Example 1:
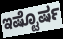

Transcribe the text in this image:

ಇಷ್ಟೊರ್ಷ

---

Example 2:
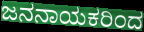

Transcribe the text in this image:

ಜನನಾಯಕರಿಂದ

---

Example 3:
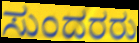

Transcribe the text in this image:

ಸುಂದರರು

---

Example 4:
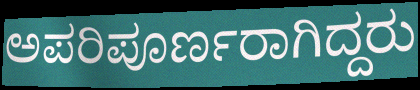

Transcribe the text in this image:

ಅಪರಿಪೂರ್ಣರಾಗಿದ್ದರು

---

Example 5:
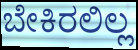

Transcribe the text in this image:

ಬೇಕಿರಲಿಲ್ಲ